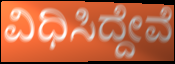
ವಿಧಿಸಿದ್ದೇವೆ